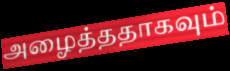
அழைத்ததாகவும்